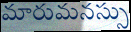
మారుమనస్సు